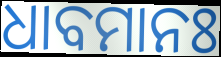
ଧାବମାନଃ